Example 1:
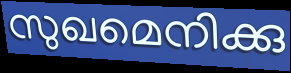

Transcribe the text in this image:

സുഖമെനിക്കു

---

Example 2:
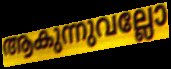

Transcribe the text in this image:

ആകുന്നുവല്ലോ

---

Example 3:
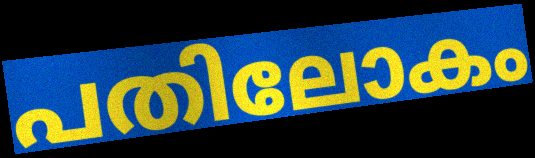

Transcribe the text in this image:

പതിലോകം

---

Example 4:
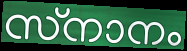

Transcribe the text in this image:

സ്‌നാനം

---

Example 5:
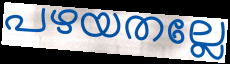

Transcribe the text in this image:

പഴയതല്ലേ